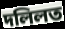
দলিলত